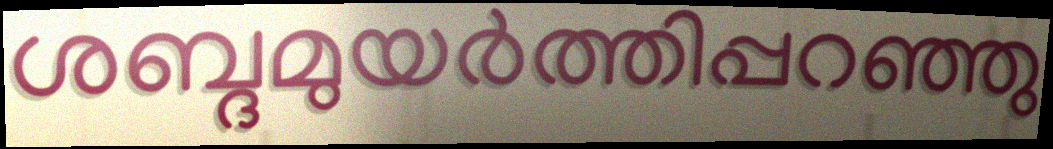
ശബ്ദമുയർത്തിപ്പറഞ്ഞു